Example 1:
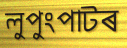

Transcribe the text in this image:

লুপুংপাটৰ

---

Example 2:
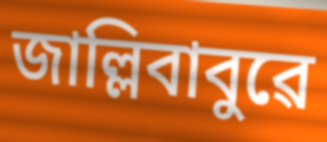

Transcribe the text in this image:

জাল্লিবাবুৱে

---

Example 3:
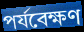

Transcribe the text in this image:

পৰ্যবেক্ষণ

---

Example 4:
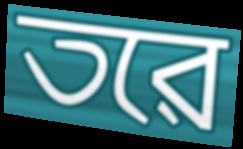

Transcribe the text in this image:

তৱে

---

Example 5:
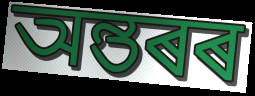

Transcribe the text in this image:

অন্তৰৰ